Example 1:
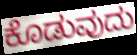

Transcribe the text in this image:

ಕೊಡುವುದು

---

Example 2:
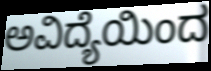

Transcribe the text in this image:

ಅವಿದ್ಯೆಯಿಂದ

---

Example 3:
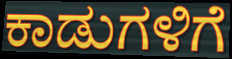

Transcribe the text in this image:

ಕಾಡುಗಳಿಗೆ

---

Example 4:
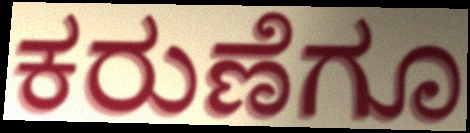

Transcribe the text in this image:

ಕರುಣೆಗೂ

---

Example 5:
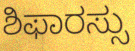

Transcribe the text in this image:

ಶಿಫಾರಸ್ಸು